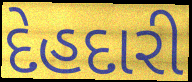
દેહદારી